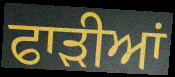
ਫਾੜੀਆਂ